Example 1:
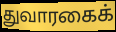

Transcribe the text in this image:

துவாரகைக்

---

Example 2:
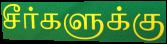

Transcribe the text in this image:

சீர்களுக்கு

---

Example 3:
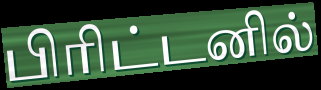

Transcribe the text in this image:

பிரிட்டனில்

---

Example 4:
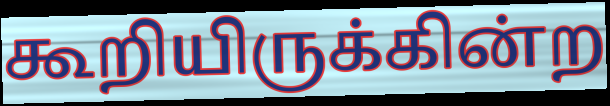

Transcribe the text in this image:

கூறியிருக்கின்ற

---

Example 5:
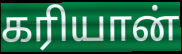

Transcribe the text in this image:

கரியான்